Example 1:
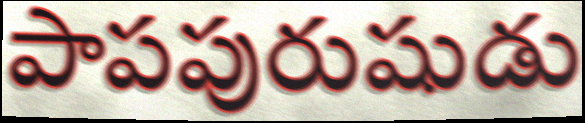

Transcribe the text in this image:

పాపపురుషుడు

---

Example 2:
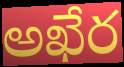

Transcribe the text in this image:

అఖేర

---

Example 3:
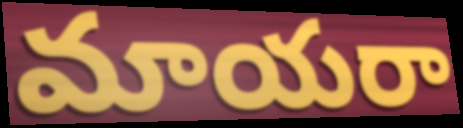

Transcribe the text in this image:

మాయరా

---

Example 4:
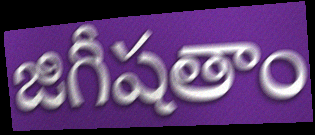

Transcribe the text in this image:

జిగీషతాం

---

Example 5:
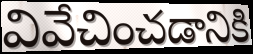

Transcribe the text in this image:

వివేచించడానికి